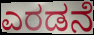
ಎರಡನೆ